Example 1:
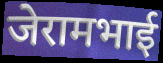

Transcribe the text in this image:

जेरामभाई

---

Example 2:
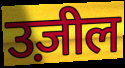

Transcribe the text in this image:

उज़ील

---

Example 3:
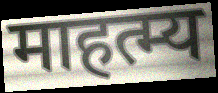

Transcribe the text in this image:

माहत्म्य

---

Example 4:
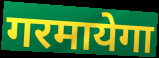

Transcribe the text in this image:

गरमायेगा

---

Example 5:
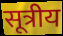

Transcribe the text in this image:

सूत्रीय